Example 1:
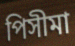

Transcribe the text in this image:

পিসীমা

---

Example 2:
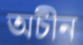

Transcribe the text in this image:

অচীন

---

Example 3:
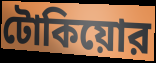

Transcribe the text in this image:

টোকিয়োর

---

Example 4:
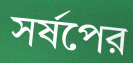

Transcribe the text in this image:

সর্ষপের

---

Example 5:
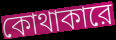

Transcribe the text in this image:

কোথাকারে